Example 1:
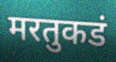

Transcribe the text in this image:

मरतुकडं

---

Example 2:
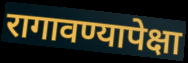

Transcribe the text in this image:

रागावण्यापेक्षा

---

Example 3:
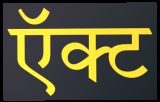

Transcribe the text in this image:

ऍक्ट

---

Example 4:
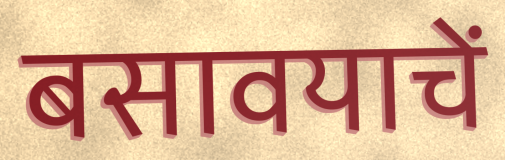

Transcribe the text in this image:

बसावयाचें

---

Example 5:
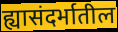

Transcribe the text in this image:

ह्यासंदर्भातील